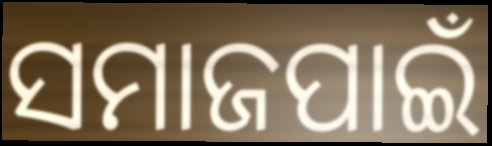
ସମାଜପାଇଁ